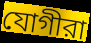
যোগীরা